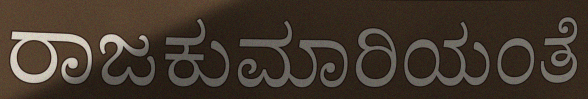
ರಾಜಕುಮಾರಿಯಂತೆ